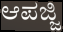
ಆಪಜ್ಜಿ